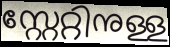
സ്റ്റേറ്റിനുള്ള